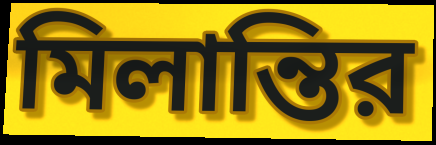
মিলান্তির